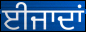
ਈਜਾਦਾਂ